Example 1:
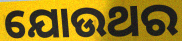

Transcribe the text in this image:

ଯୋଉଥର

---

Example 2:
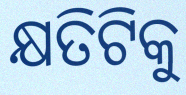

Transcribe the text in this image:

କ୍ଷତିଟିକୁ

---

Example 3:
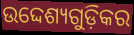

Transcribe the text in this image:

ଉଦ୍ଦେଶ୍ୟଗୁଡ଼ିକର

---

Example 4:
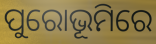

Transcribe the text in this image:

ପୁରୋଭୂମିରେ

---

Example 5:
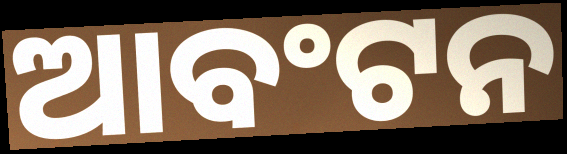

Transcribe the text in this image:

ଆବଂଟନ